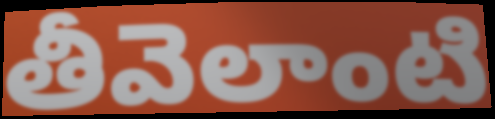
తీవెలాంటి